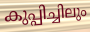
കുപ്പിച്ചിലും